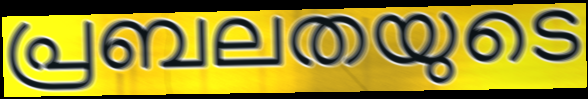
പ്രബലതയുടെ